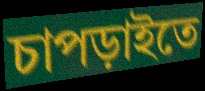
চাপড়াইতে